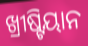
ଖ୍ରୀଷ୍ଟିୟାନ